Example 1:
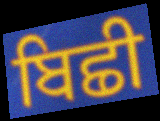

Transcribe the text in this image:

ਬਿਛੀ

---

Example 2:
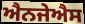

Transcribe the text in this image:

ਐਨਜੇਐਸ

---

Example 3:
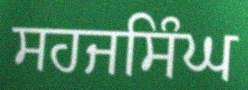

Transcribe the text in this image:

ਸਹਜਸਿੰਘ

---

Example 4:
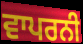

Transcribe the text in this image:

ਵਾਪਰਨੀ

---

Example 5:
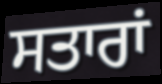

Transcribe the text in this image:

ਸਤਾਰਾਂ